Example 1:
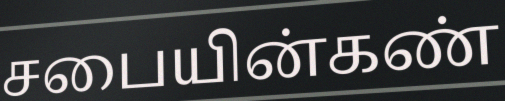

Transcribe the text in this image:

சபையின்கண்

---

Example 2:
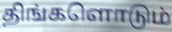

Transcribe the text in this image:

திங்களொடும்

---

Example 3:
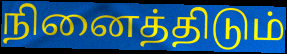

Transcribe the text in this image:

நினைத்திடும்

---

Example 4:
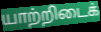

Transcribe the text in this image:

யாற்றிடைக்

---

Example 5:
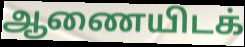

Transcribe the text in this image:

ஆணையிடக்